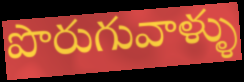
పొరుగువాళ్ళు